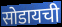
सोडायची